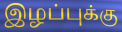
இழப்புக்கு